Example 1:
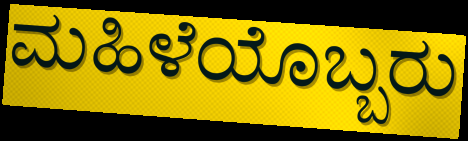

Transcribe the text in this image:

ಮಹಿಳೆಯೊಬ್ಬರು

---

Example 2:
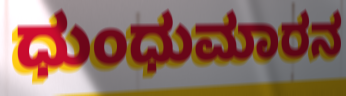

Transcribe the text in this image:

ಧುಂಧುಮಾರನ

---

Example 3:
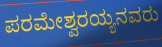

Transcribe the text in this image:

ಪರಮೇಶ್ವರಯ್ಯನವರು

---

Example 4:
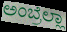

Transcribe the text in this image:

ಅಂಬ್ರೆಲ್ಲಾ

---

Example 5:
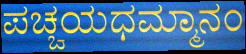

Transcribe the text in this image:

ಪಚ್ಚಯಧಮ್ಮಾನಂ